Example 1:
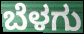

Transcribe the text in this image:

ಬೆಳಗು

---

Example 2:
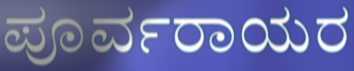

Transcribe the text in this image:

ಪೂರ್ವರಾಯರ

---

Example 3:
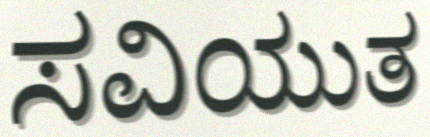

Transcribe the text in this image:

ಸವಿಯುತ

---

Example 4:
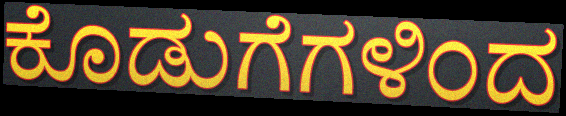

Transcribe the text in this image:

ಕೊಡುಗೆಗಳಿಂದ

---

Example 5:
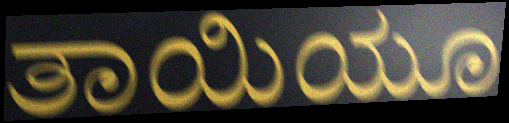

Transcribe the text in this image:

ತಾಯಿಯೂ